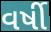
વર્ષી